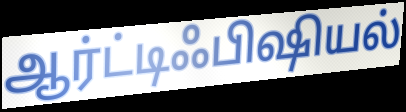
ஆர்ட்டிஃபிஷியல்